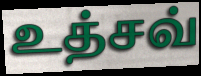
உத்சவ்